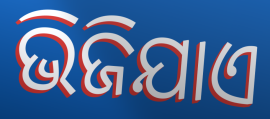
ଭିଜିଯାଏ